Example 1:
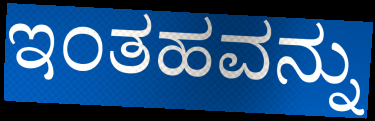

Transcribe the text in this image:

ಇಂತಹವನ್ನು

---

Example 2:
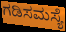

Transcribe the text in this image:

ಗಡಿಸಮಸ್ಯೆ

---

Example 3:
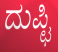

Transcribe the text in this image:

ದುಪ್ಟಿ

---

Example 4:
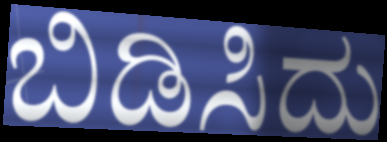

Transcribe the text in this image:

ಬಿಡಿಸಿದು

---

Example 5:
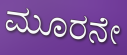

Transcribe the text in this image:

ಮೂರನೇ